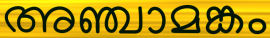
അഞ്ചാമങ്കം